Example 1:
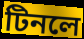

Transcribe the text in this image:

টিনলে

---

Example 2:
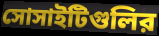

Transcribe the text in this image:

সোসাইটিগুলির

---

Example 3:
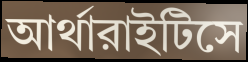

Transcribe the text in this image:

আর্থারাইটিসে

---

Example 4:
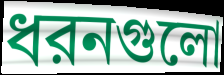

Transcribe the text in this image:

ধরনগুলো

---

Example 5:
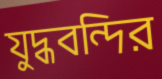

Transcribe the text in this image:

যুদ্ধবন্দির